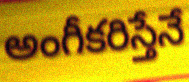
అంగీకరిస్తేనే